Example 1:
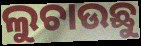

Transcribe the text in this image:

ଲୁଚାଉଛୁ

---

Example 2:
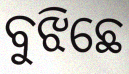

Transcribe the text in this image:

ବୁଝିଛେ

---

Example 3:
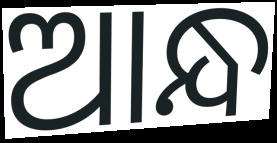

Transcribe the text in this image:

ଆନ୍ଧ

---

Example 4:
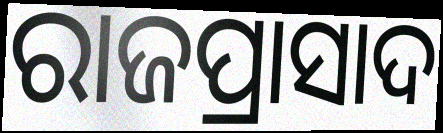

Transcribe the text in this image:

ରାଜପ୍ରାସାଦ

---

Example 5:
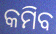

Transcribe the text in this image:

କମିବ